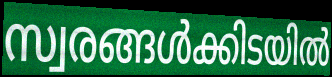
സ്വരങ്ങൾക്കിടയിൽ